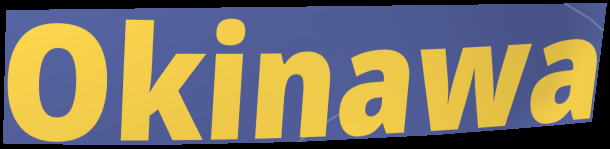
Okinawa